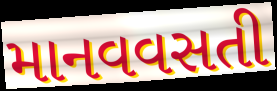
માનવવસતી